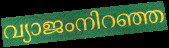
വ്യാജംനിറഞ്ഞ